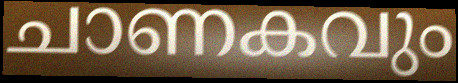
ചാണകവും